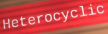
Heterocyclic